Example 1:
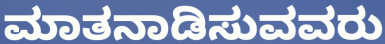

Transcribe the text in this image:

ಮಾತನಾಡಿಸುವವರು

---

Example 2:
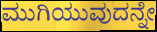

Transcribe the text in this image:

ಮುಗಿಯುವುದನ್ನೇ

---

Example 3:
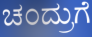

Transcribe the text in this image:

ಚಂದ್ರುಗೆ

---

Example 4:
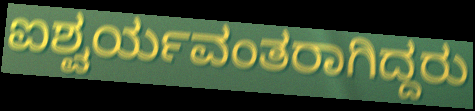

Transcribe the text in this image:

ಐಶ್ವರ್ಯವಂತರಾಗಿದ್ದರು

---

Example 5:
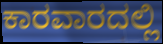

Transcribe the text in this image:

ಕಾರವಾರದಲ್ಲಿ